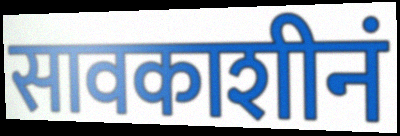
सावकाशीनं